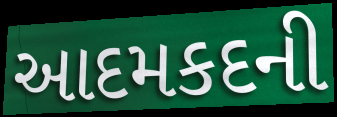
આદમકદની